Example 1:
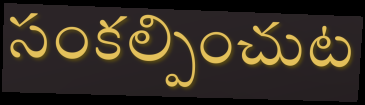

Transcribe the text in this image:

సంకల్పించుట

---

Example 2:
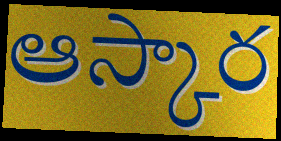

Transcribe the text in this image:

ఆస్కార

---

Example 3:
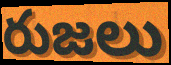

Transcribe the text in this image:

రుజలు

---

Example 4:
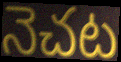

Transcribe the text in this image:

నెచట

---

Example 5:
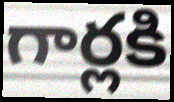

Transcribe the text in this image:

గార్లకి